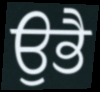
ਉਭੈ